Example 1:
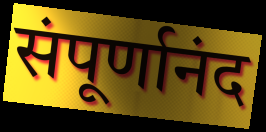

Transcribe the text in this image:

संपूर्णानंद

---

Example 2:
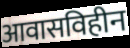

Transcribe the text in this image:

आवासविहीन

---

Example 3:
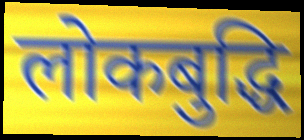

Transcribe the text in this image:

लोकबुद्धि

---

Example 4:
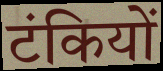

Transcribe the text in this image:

टंकियों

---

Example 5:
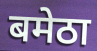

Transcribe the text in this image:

बमेठा